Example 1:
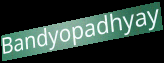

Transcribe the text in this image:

Bandyopadhyay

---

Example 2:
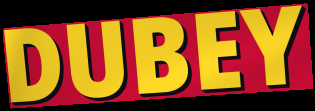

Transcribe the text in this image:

DUBEY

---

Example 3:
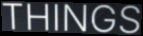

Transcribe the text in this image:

THINGS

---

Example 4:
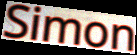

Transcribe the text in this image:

Simon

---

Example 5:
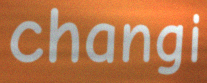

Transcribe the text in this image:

changi